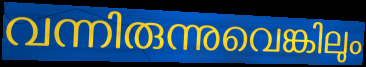
വന്നിരുന്നുവെങ്കിലും